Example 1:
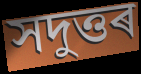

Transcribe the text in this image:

সদুত্তৰ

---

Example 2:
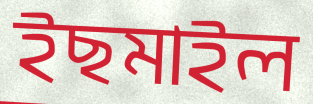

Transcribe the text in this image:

ইছমাইল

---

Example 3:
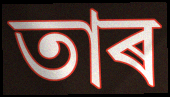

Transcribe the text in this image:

তাৰ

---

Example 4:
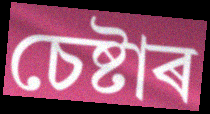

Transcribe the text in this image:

চেষ্টাৰ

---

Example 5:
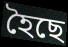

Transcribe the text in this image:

হৈছে